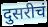
दुसरीचं